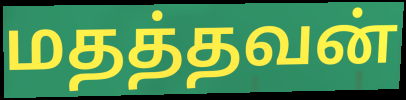
மதத்தவன்